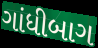
ગાંધીબાગ